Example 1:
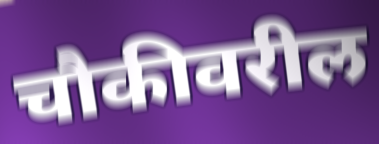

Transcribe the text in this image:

चौकीवरील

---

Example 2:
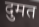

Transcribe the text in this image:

दुमत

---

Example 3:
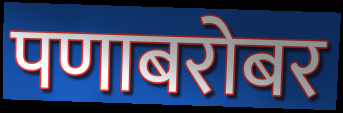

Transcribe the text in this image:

पणाबरोबर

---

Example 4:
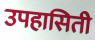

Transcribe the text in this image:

उपहासिती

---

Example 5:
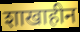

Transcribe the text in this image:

शाखाहीन